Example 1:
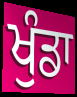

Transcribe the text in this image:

ਖੁੰਡਾ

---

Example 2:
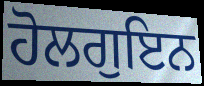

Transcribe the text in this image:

ਹੋਲਗੁਇਨ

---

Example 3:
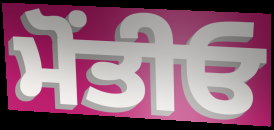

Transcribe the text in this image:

ਮੋਂਤੀਓ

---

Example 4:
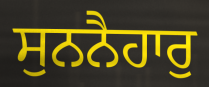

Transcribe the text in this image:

ਸੁਨਨੈਹਾਰੁ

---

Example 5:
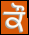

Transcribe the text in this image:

ਕੌ